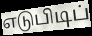
எடுபிடிப்